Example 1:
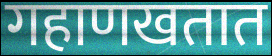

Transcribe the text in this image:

गहाणखतात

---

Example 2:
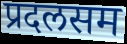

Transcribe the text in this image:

प्रदलसम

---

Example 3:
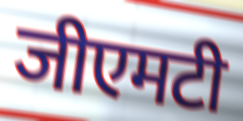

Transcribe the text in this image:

जीएमटी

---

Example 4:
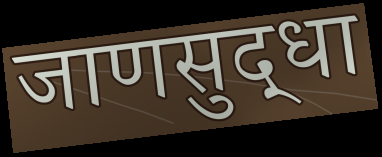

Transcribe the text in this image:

जाणसुद्धा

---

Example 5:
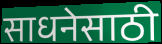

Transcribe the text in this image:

साधनेसाठी